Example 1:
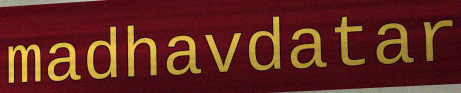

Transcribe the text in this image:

madhavdatar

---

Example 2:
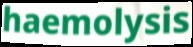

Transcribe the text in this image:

haemolysis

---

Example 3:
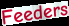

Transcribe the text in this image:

Feeders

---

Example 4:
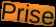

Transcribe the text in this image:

Prise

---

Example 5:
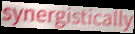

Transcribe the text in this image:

synergistically